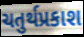
ચતુર્થપ્રકાશ